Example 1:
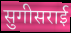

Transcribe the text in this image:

सुगीसराई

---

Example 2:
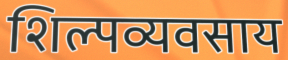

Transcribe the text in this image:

शिल्पव्यवसाय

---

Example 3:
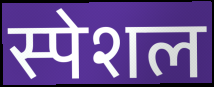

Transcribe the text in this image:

स्पेशल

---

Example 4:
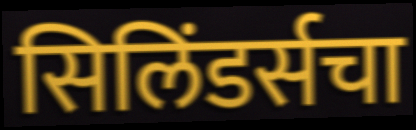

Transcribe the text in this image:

सिलिंडर्सचा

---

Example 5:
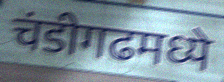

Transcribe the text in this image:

चंडीगढमध्ये